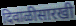
दिवाळीसारखी